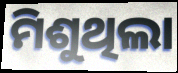
ମିଶୁଥିଲା